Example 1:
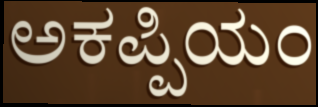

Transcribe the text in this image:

ಅಕಪ್ಪಿಯಂ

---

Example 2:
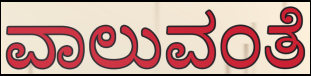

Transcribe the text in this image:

ವಾಲುವಂತೆ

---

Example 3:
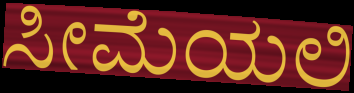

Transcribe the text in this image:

ಸೀಮೆಯಲಿ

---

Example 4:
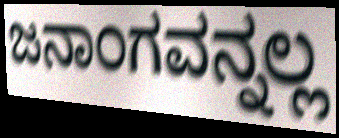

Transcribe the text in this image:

ಜನಾಂಗವನ್ನಲ್ಲ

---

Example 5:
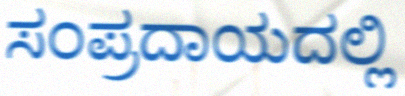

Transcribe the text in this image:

ಸಂಪ್ರದಾಯದಲ್ಲಿ